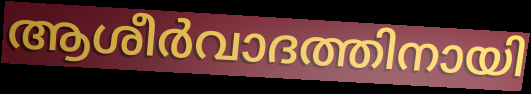
ആശീർവാദത്തിനായി